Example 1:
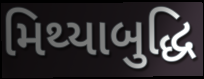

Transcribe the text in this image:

મિથ્યાબુદ્ધિ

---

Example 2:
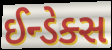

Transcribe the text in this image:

ઈન્ડેક્સ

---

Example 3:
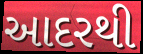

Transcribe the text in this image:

આદરથી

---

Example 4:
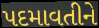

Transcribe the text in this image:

પદમાવતીને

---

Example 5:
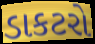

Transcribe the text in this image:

ડાકટરો